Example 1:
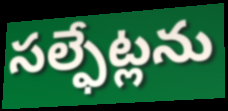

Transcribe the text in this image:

సల్ఫేట్లను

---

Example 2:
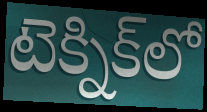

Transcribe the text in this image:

టెక్నిక్‌లో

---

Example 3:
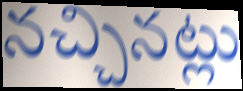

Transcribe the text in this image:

నచ్చినట్లు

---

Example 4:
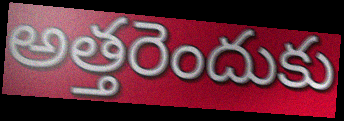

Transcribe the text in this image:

అత్తరెందుకు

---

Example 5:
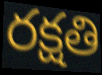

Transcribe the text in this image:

రక్షతి